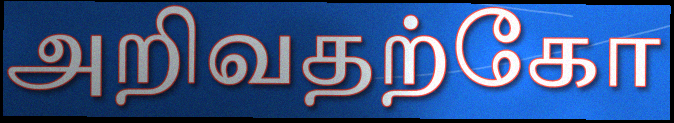
அறிவதற்கோ